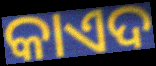
କାଏଦ